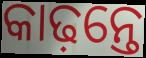
କାଢ଼ନ୍ତେ